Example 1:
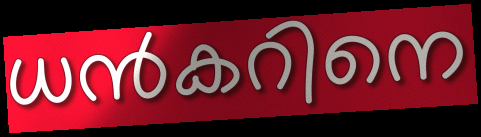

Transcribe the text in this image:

ധൻകറിനെ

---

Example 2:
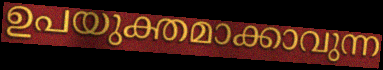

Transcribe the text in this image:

ഉപയുക്തമാക്കാവുന്ന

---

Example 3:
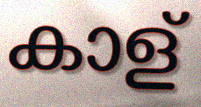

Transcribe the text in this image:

കാള്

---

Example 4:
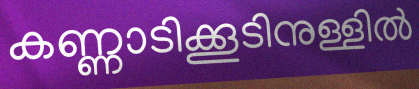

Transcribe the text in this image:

കണ്ണാടിക്കൂടിനുള്ളിൽ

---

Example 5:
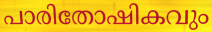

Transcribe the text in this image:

പാരിതോഷികവും